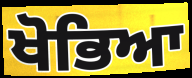
ਖੋਭਿਆ